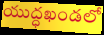
యుద్ధఖండలో